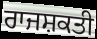
ਰਾਜਸ਼ਕਤੀ